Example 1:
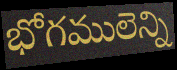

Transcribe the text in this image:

భోగములెన్ని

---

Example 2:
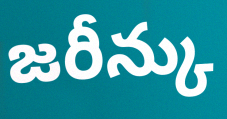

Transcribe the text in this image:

జరీన్కు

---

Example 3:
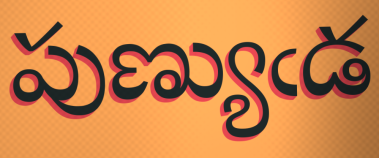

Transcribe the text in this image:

పుణ్యుఁడ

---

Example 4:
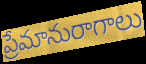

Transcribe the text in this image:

ప్రేమానురాగాలు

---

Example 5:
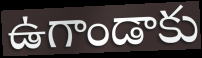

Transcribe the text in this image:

ఉగాండాకు